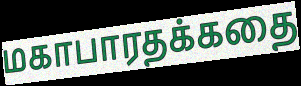
மகாபாரதக்கதை